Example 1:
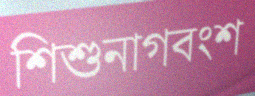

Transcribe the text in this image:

শিশুনাগবংশ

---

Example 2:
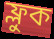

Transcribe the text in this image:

ফ্লুক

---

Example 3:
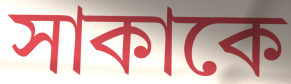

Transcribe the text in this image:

সাকাকে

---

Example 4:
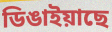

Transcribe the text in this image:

ডিঙাইয়াছে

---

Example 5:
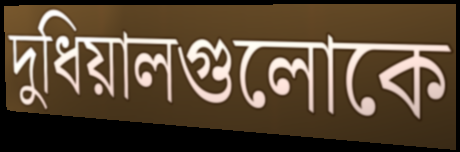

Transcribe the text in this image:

দুধিয়ালগুলোকে